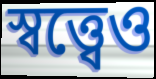
স্বত্ত্বেও